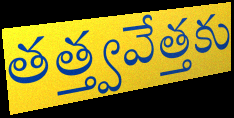
తత్త్వవేత్తకు